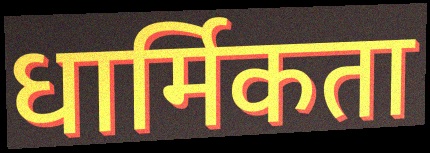
धार्मिकता